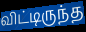
விட்டிருந்த